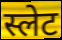
स्लेट